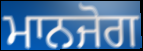
ਮਾਨਜੋਗ